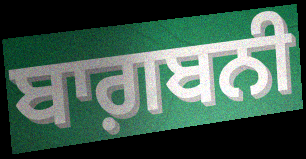
ਬਾਗ਼ਬਨੀ